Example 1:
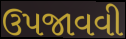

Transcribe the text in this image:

ઉપજાવવી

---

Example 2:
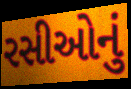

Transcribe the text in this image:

રસીઓનું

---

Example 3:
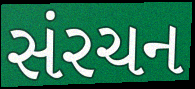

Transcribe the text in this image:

સંરચન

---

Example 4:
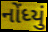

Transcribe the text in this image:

નોંધ્યું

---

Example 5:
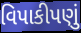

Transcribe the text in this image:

વિપાકીપણું